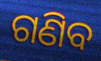
ଗଣିବ